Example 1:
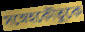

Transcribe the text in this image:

সস্নেহকৌতুকে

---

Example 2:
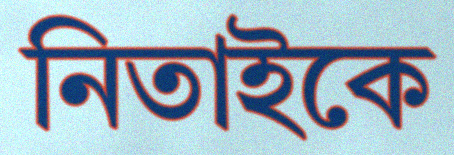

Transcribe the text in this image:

নিতাইকে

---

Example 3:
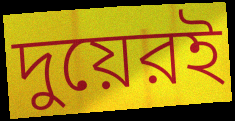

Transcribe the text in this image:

দুয়েরই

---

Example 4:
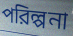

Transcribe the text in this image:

পরিল্পনা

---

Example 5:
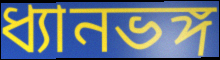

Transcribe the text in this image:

ধ্যানভঙ্গ